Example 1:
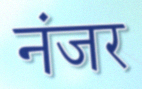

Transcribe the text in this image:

नंजर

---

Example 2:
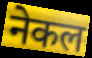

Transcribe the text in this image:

नेकल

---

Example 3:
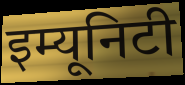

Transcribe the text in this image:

इम्‍यूनिटी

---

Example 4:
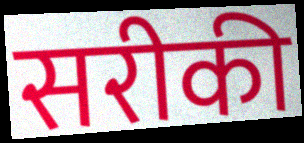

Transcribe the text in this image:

सरीकी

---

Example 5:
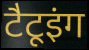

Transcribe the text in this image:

टैटूइंग